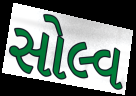
સોલ્વ